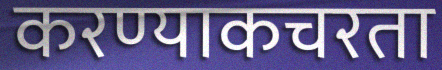
करण्याकचरता